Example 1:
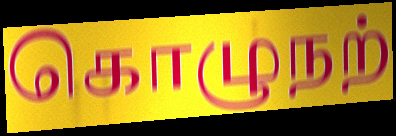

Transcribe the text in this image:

கொழுநற்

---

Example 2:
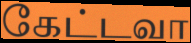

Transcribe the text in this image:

கேட்டவா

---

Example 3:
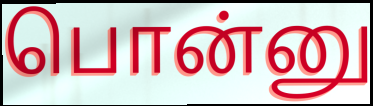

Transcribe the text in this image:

பொன்னு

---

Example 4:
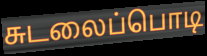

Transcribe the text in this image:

சுடலைப்பொடி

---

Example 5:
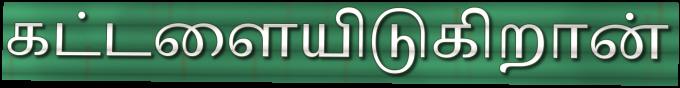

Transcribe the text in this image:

கட்டளையிடுகிறான்